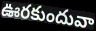
ఊరకుందువా